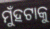
ମୁଁହଟାକୁ